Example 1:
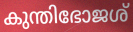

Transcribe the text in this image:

കുന്തിഭോജശ്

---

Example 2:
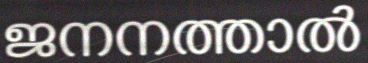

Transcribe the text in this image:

ജനനത്താൽ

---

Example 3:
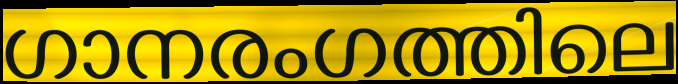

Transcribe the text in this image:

ഗാനരംഗത്തിലെ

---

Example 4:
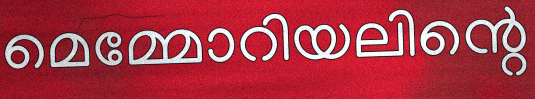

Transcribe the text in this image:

മെമ്മോറിയലിന്റെ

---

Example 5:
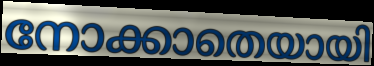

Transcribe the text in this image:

നോക്കാതെയായി